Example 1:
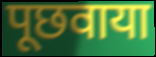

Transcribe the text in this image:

पूछवाया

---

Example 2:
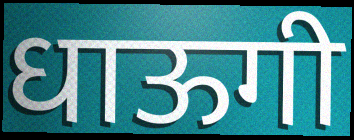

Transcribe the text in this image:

धाऊगी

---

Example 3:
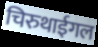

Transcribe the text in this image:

चिरुथाईगल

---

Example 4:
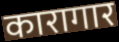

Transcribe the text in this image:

कारागार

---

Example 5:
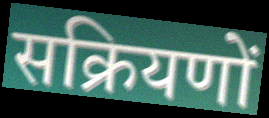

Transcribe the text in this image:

सक्रियणों